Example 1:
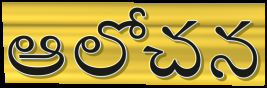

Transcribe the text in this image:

ఆలోచన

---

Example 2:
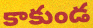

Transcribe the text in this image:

కాకుండ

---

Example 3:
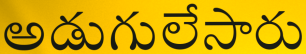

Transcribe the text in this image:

అడుగులేసారు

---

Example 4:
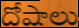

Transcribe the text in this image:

దోషాలు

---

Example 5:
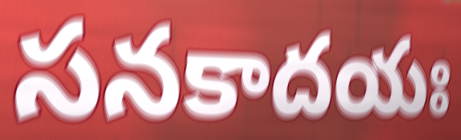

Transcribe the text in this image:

సనకాదయః